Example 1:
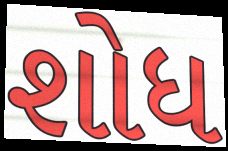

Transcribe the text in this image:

શોધ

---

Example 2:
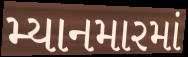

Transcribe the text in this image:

મ્યાનમારમાં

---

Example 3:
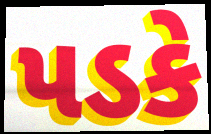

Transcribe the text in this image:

પડકે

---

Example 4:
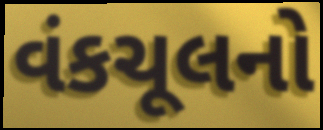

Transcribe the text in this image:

વંકચૂલનો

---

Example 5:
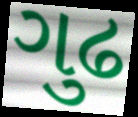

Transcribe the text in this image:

ગુઢ